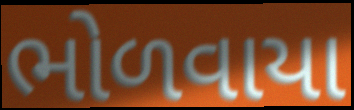
ભોળવાયા